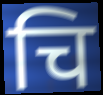
चि